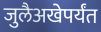
जुलैअखेपर्यंत